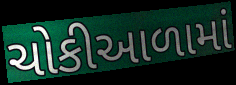
ચોકીઆળામાં